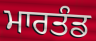
ਮਾਰਤੰਡ